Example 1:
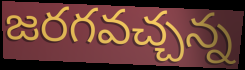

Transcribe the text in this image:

జరగవచ్చన్న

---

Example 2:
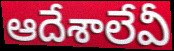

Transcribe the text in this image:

ఆదేశాలేవీ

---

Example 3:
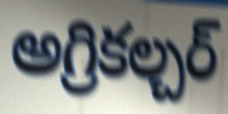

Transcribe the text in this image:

అగ్రికల్చర్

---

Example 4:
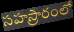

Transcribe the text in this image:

సహస్రారంలో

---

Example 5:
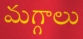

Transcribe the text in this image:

మగ్గాలు